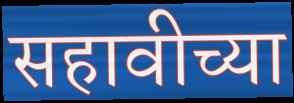
सहावीच्या